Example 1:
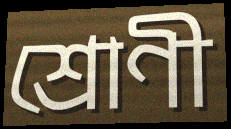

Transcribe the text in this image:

শ্রোণী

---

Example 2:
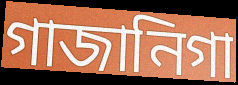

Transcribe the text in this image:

গাজানিগা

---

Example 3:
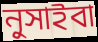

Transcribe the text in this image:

নুসাইবা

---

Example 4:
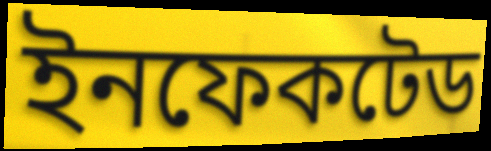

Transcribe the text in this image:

ইনফেকটেড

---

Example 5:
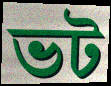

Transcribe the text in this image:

ভট